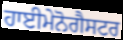
ਹਾਈਮੇਨੋਗੈਸਟਰ